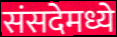
संसदेमध्ये